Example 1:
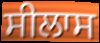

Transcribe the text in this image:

ਸੀਲਾਸ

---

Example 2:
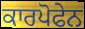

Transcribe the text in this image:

ਕਾਰਪੋਫੇਨ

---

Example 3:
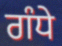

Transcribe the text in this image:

ਗੰਧੇ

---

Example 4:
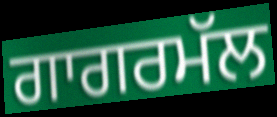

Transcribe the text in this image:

ਗਾਗਰਮੱਲ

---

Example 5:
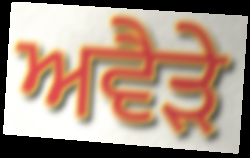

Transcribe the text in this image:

ਅਵੈੜੇ